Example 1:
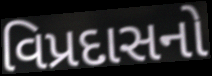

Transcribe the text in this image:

વિપ્રદાસનો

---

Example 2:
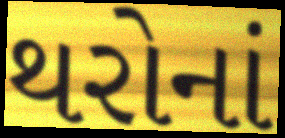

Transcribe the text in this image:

થરોનાં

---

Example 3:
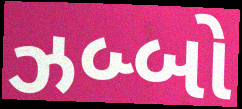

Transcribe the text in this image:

ઝબ્બો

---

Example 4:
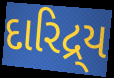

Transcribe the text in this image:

દારિદ્ર્ય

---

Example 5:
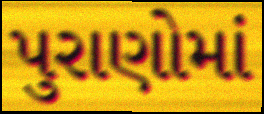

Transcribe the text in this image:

પુરાણોમાં